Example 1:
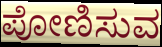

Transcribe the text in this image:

ಪೋಣಿಸುವ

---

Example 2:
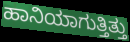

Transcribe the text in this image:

ಹಾನಿಯಾಗುತ್ತಿತ್ತು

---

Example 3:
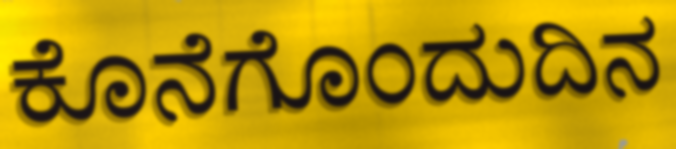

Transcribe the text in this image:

ಕೊನೆಗೊಂದುದಿನ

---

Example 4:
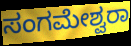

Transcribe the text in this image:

ಸಂಗಮೇಶ್ವರಾ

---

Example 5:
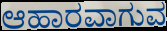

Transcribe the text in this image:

ಆಹಾರವಾಗುವ